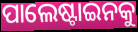
ପାଲେଷ୍ଟାଇନକୁ